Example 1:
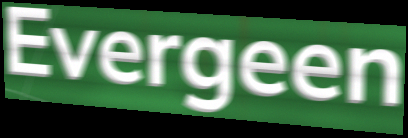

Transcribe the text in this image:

Evergeen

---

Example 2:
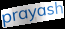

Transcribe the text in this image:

prayash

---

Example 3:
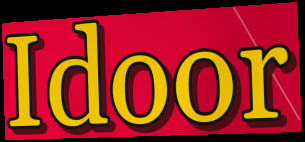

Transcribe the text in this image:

Idoor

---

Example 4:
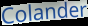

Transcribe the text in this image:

Colander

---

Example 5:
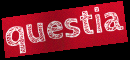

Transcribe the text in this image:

questia